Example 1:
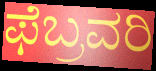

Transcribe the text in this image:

ಫೆಬ್ರವರಿ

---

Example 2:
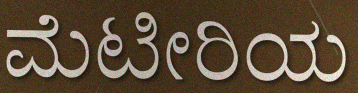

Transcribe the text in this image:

ಮೆಟೀರಿಯ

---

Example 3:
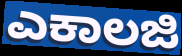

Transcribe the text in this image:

ಎಕಾಲಜಿ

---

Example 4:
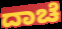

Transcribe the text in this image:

ದಾಚೆ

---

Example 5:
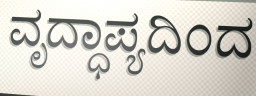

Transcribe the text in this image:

ವೃದ್ಧಾಪ್ಯದಿಂದ